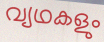
വ്യഥകളും